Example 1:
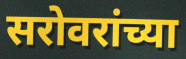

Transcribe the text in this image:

सरोवरांच्या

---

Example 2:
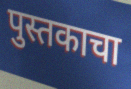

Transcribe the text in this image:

पुस्तकाचा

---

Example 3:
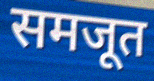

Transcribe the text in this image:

समजूत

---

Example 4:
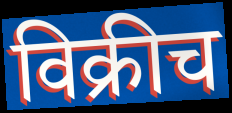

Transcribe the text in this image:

विक्रीच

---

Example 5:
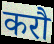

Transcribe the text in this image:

करौ